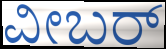
ವೀಬರ್